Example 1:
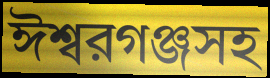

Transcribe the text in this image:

ঈশ্বরগঞ্জসহ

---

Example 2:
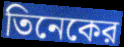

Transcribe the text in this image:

তিনেকের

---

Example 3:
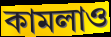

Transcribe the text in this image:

কামলাও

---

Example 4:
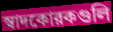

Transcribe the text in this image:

স্বাদকোরকগুলি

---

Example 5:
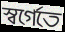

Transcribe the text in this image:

স্বর্গেতে